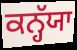
ਕਨ੍ਹੱਯਾ